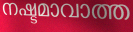
നഷ്ടമാവാത്ത